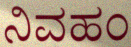
ನಿವಹಂ